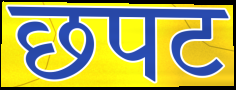
छपट